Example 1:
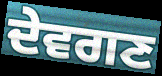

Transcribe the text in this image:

ਦੇਵਗਣ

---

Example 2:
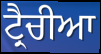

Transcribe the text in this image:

ਟ੍ਰੈਚੀਆ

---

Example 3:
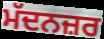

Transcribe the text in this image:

ਮੱਦਨਜ਼ਰ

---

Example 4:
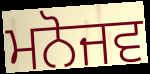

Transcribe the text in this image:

ਮਨੋਜਵ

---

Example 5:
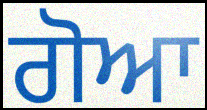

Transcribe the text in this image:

ਗੋਆ